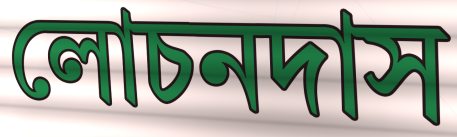
লোচনদাস